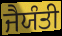
ਜੈਯੰਤੀ